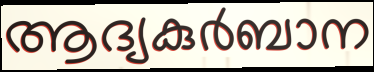
ആദ്യകുർബാന